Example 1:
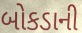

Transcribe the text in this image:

બોકડાની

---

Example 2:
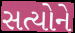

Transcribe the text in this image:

સત્યોને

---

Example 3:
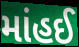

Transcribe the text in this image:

માંહઈ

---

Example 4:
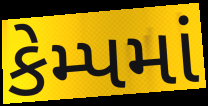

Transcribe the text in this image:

કેમ્પમાં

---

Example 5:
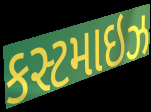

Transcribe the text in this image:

કસ્ટમાઇઝ